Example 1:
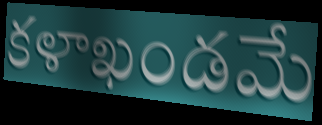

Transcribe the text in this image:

కళాఖండమే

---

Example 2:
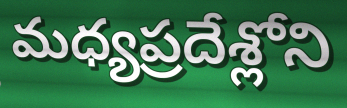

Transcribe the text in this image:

మధ్యప్రదేశ్లోని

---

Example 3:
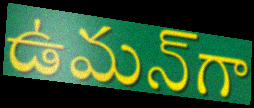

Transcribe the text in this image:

ఉమన్‌గా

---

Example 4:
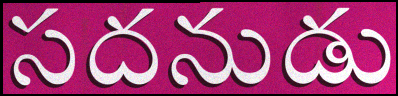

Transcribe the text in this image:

సదనుడు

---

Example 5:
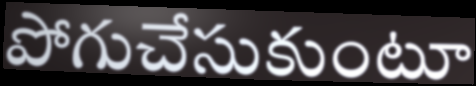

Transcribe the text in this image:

పోగుచేసుకుంటూ